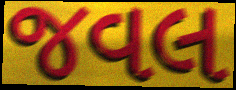
જવલ